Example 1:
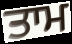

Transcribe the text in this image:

ਤਾਮ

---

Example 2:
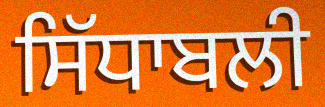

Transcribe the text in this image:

ਸਿੱਧਾਬਲੀ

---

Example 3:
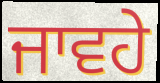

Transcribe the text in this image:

ਜਾਵਹੇ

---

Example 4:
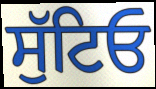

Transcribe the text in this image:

ਸੁੱਟਿਓ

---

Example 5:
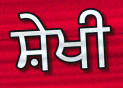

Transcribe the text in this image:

ਸ਼ੇਖੀ